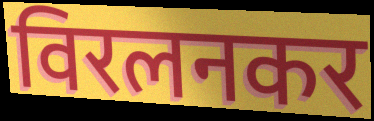
विरलनकर